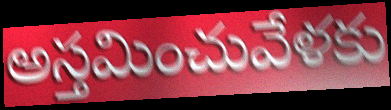
అస్తమించువేళకు